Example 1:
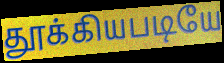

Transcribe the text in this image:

தூக்கியபடியே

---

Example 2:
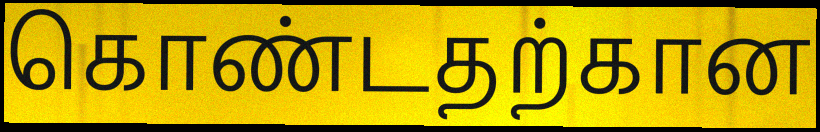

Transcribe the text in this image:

கொண்டதற்கான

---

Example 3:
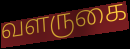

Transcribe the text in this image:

வளருகை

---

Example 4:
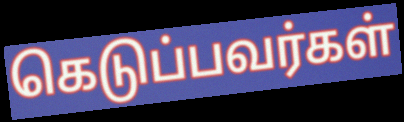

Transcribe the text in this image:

கெடுப்பவர்கள்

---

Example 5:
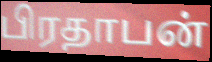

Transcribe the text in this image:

பிரதாபன்